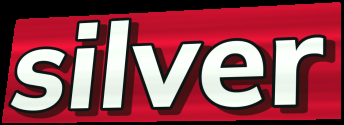
silver